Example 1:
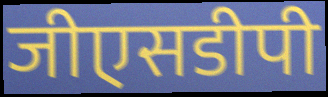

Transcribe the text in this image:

जीएसडीपी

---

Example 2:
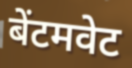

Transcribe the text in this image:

बेंटमवेट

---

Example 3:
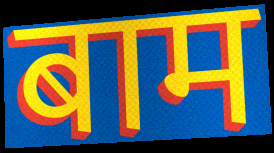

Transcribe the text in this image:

बाम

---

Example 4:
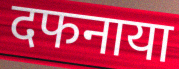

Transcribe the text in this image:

दफनाया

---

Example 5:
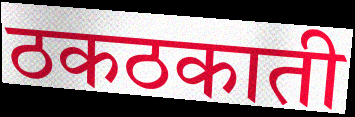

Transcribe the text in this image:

ठकठकाती